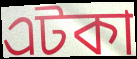
এটকা